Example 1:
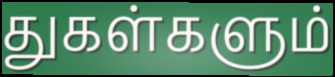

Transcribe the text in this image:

துகள்களும்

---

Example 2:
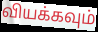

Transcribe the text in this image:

வியக்கவும்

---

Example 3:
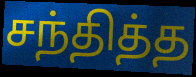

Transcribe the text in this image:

சந்தித்த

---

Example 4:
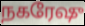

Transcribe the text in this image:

நகரேஷு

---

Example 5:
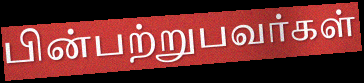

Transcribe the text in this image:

பின்பற்றுபவர்கள்